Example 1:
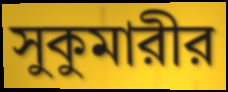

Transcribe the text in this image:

সুকুমারীর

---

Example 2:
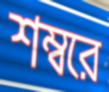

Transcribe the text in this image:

শম্বরে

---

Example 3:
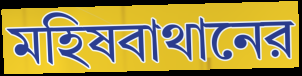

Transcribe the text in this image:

মহিষবাথানের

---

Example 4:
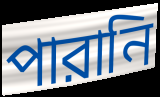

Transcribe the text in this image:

পারানি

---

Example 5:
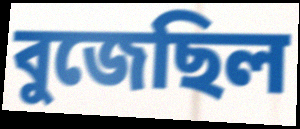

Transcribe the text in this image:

বুজেছিল